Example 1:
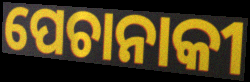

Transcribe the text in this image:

ପେଚାନାକୀ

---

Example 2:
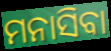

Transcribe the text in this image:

ମନାସିବା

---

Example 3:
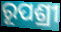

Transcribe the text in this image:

ରୂପଶ୍ରୀ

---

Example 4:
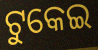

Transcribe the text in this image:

ଟୁକେଇ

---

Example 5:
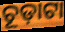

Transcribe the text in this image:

ଚୂଡ଼ାଟା